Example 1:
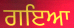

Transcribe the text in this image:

ਗਇਆ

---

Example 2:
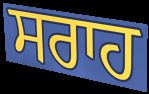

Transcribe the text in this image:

ਸਰਾਹ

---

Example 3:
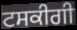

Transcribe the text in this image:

ਟਸਕੀਗੀ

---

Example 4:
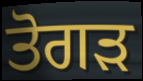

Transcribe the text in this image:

ਤੋਗੜ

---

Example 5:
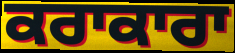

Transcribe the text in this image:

ਕਰਾਕਾਰਾ